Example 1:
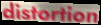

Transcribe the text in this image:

distortion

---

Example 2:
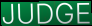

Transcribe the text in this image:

JUDGE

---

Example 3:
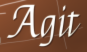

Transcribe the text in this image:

Agit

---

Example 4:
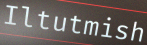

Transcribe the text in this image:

Iltutmish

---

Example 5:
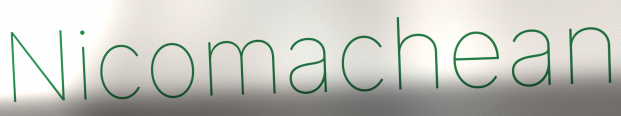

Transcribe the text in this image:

Nicomachean